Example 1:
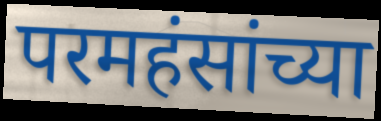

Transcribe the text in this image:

परमहंसांच्या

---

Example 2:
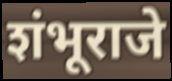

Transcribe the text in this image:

शंभूराजे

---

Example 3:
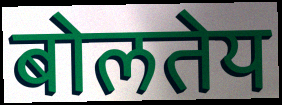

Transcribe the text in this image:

बोलतेय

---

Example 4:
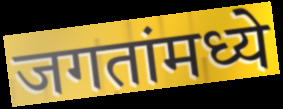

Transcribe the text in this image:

जगतांमध्ये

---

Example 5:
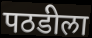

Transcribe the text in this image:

पठडीला